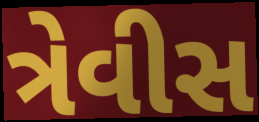
ત્રેવીસ